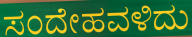
ಸಂದೇಹವಳಿದು